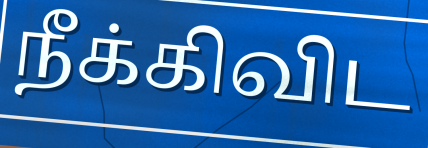
நீக்கிவிட